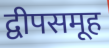
द्वीपसमूह